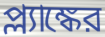
প্ল্যাঙ্কের